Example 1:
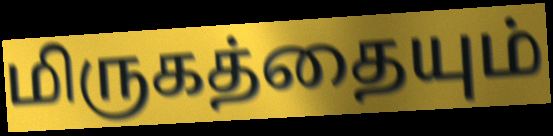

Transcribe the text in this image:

மிருகத்தையும்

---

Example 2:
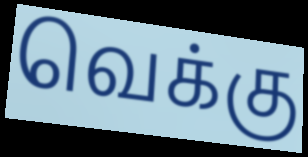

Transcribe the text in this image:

வெக்கு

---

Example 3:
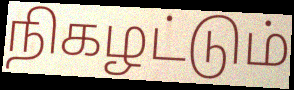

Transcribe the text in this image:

நிகழட்டும்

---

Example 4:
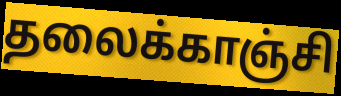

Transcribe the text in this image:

தலைக்காஞ்சி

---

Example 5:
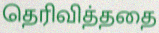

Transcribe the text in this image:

தெரிவித்ததை